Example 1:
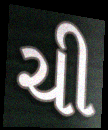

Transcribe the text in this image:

ચી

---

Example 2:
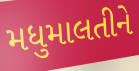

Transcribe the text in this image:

મધુમાલતીને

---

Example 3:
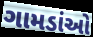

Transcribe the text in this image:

ગામડાંઓ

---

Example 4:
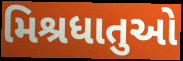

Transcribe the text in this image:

મિશ્રધાતુઓ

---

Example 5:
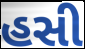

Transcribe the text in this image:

હસી